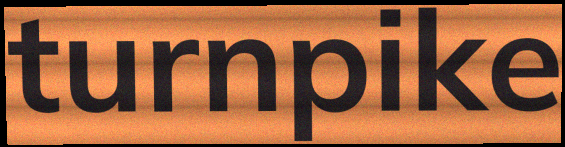
turnpike